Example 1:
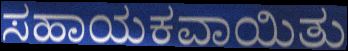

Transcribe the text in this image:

ಸಹಾಯಕವಾಯಿತು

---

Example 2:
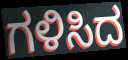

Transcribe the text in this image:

ಗಳಿಸಿದ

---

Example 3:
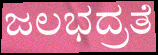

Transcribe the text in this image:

ಜಲಭದ್ರತೆ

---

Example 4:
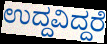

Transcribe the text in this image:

ಉದ್ದವಿದ್ದರೆ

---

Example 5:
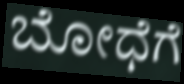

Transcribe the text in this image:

ಬೋಧೆಗೆ